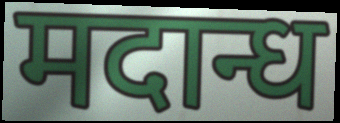
मदान्ध